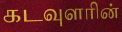
கடவுளரின்